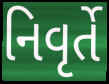
નિવૃર્તે